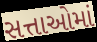
સત્તાઓમાં